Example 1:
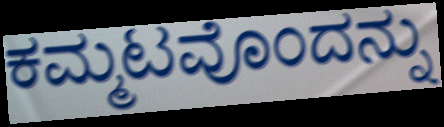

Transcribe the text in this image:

ಕಮ್ಮಟವೊಂದನ್ನು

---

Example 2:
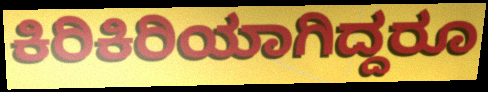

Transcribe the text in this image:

ಕಿರಿಕಿರಿಯಾಗಿದ್ದರೂ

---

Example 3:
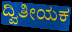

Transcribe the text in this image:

ದ್ವಿತೀಯಕ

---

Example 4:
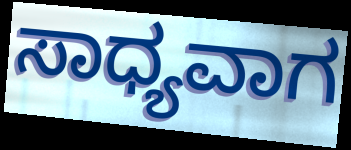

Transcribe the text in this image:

ಸಾಧ್ಯವಾಗ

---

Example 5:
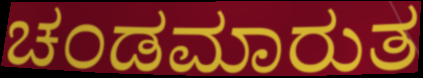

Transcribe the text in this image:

ಚಂಡಮಾರುತ